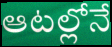
ఆటల్లోనే